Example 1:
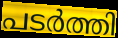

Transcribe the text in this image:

പടർത്തി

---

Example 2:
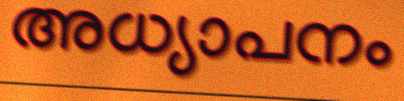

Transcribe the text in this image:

അധ്യാപനം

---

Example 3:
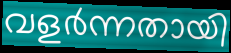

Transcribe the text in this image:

വളർന്നതായി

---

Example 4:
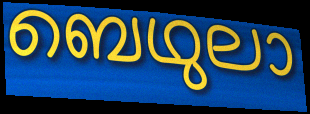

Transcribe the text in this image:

ബെഥുലാ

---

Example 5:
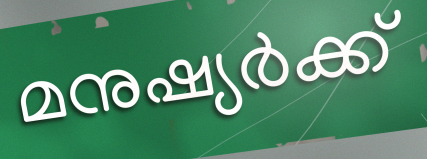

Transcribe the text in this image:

മനുഷ്യർക്ക്